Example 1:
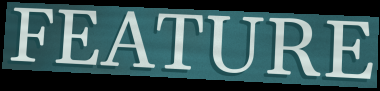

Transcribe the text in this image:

FEATURE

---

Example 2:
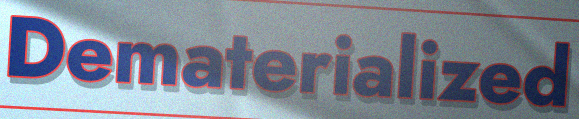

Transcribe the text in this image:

Dematerialized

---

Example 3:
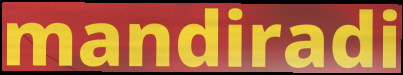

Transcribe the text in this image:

mandiradi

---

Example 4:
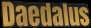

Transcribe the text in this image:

Daedalus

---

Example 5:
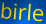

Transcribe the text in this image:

birle